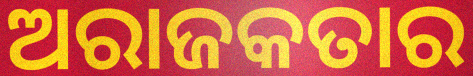
ଅରାଜକତାର